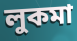
লুকমা